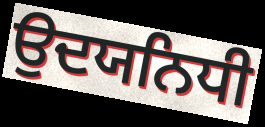
ਉਦਯਨਿਧੀ